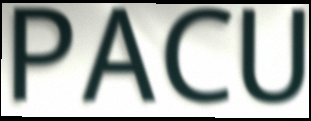
PACU